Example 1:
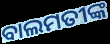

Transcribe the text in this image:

ବାଲମତୀଙ୍କ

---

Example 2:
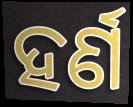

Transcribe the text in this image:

ହର୍ଣ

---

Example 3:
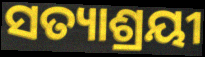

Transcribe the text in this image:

ସତ୍ୟାଶ୍ରୟୀ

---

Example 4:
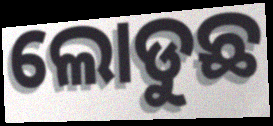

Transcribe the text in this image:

ଲୋଡୁଛ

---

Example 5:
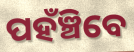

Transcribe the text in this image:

ପହଁଞ୍ଚିବେ